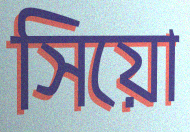
সিয়ো